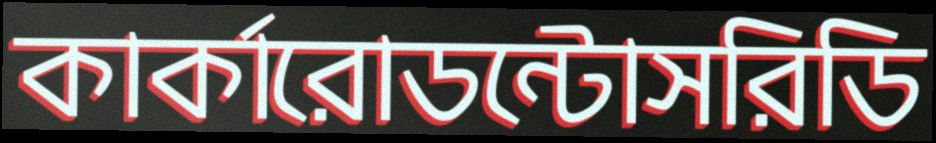
কার্কারোডন্টোসরিডি